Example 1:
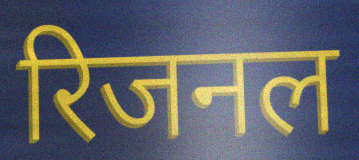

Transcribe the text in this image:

रिजनल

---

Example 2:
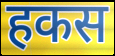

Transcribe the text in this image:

हकस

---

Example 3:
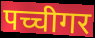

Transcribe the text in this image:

पच्चीगर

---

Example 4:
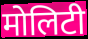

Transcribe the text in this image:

मोलिटी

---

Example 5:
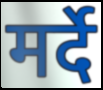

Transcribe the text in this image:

मर्दे